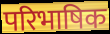
परिभाषिक